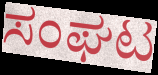
ಸಂಘಟ